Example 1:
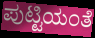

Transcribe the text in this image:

ಪುಟ್ಟಿಯಂತೆ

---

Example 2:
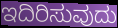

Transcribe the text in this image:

ಇದಿರಿಸುವುದು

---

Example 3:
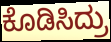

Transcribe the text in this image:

ಕೊಡಿಸಿದ್ರು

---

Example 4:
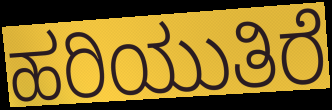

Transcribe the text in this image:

ಹರಿಯುತಿರೆ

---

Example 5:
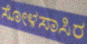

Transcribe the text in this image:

ಸೋಳಸಾಸಿರ